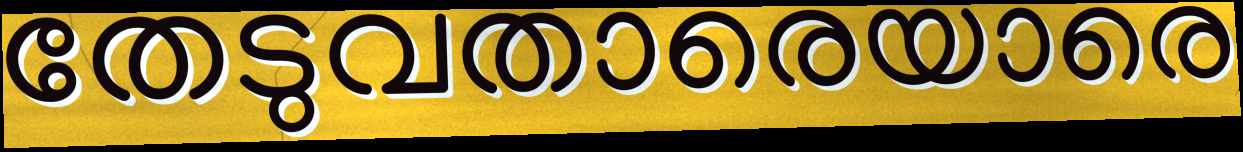
തേടുവതാരെയാരെ